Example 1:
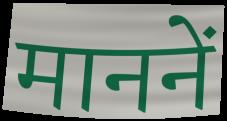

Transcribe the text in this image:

माननें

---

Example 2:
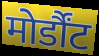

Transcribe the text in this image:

मोर्डौंट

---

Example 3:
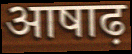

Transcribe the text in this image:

आषाढ़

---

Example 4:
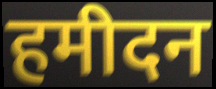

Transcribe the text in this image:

हमीदन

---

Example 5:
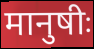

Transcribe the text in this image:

मानुषीः